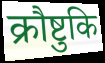
क्रौष्टुकि